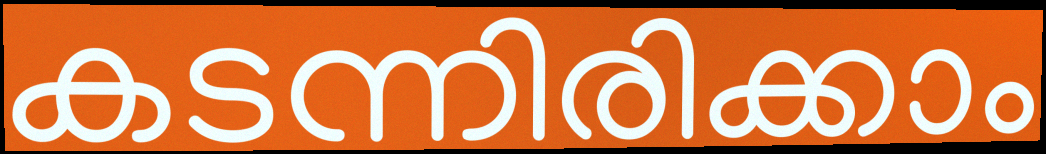
കടന്നിരിക്കാം